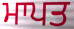
ਮਾਪਤ